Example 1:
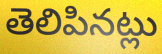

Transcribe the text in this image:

తెలిపినట్లు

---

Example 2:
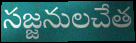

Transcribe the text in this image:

సజ్జనులచేత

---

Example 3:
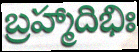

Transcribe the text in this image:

బ్రహ్మాదిభిః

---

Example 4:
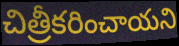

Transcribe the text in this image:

చిత్రీకరించాయని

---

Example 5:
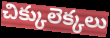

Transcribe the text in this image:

చిక్కులెక్కలు